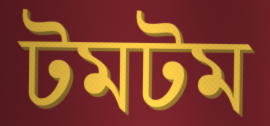
টমটম